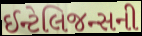
ઈન્ટેલિજન્સની